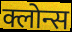
क्लोन्स